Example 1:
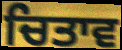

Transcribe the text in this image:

ਚਿਤਾਵ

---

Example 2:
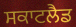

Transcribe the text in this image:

ਸਕਾਟਲੈਡ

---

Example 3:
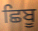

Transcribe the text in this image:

ਛਿਬੂ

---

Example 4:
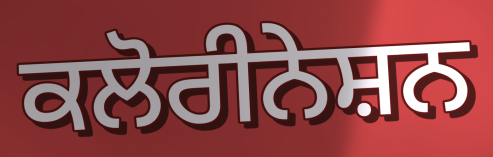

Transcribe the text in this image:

ਕਲੋਰੀਨੇਸ਼ਨ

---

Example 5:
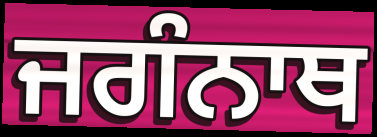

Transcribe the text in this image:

ਜਗੰਨਾਥ